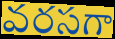
వరసగా